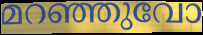
മറഞ്ഞുവോ